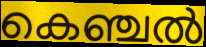
കെഞ്ചൽ